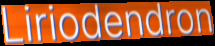
Liriodendron